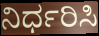
ನಿರ್ಧರಿಸಿ